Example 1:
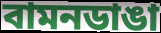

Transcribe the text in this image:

বামনডাঙা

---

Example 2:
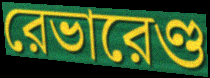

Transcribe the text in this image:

রেভারেণ্ড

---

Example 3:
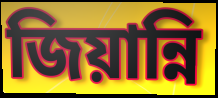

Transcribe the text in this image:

জিয়ান্নি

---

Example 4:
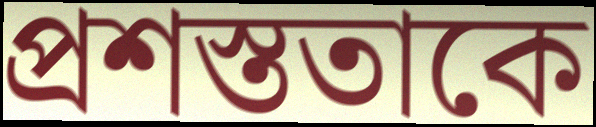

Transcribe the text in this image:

প্রশস্ততাকে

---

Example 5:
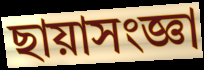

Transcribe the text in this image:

ছায়াসংজ্ঞা